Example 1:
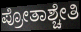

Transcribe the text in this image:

ಪ್ರೋತಾಶ್ಚೇತಿ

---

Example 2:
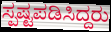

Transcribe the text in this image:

ಸ್ಪಷ್ಟಪಡಿಸಿದ್ದರು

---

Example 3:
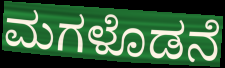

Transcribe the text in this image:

ಮಗಳೊಡನೆ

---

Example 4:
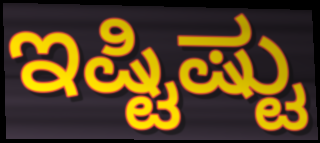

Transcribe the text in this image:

ಇಷ್ಟಿಷ್ಟು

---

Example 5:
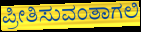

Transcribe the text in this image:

ಪ್ರೀತಿಸುವಂತಾಗಲಿ